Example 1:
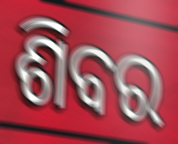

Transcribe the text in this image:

ଶିବର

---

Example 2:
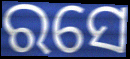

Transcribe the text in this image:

ରସେ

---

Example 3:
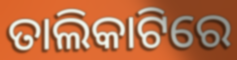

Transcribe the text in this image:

ତାଲିକାଟିରେ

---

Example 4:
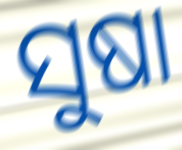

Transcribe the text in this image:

ସୁଷା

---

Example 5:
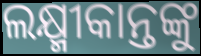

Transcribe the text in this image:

ଲକ୍ଷ୍ମୀକାନ୍ତଙ୍କୁ